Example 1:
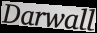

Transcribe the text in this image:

Darwall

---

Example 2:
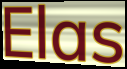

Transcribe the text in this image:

Elas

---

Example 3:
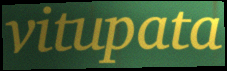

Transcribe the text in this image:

vitupata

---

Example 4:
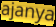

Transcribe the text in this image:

ajanya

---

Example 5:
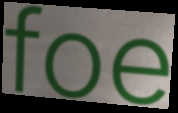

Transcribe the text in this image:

foe